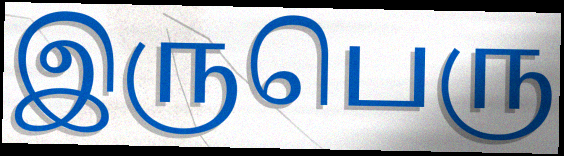
இருபெரு